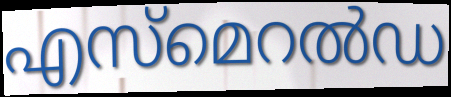
എസ്മെറൽഡ